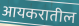
आयकरातील